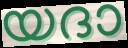
യദാ